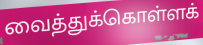
வைத்துக்கொள்ளக்